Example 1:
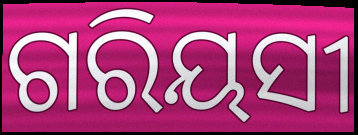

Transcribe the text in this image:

ଗରିୟସୀ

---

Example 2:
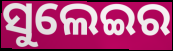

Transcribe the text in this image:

ସୁଲେଇର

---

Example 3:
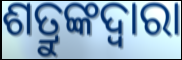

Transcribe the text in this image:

ଶତ୍ରୁଙ୍କଦ୍ୱାରା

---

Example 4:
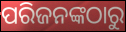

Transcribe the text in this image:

ପରିଜନଙ୍କଠାରୁ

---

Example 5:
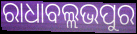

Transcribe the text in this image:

ରାଧାବଲ୍ଲଭପୁର